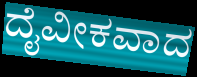
ದೈವೀಕವಾದ